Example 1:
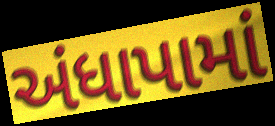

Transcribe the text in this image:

અંધાપામાં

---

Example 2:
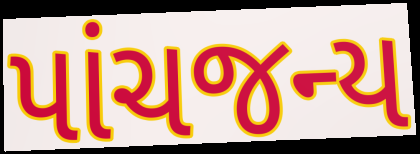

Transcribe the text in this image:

પાંચજન્ય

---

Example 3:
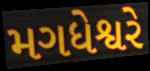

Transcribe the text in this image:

મગધેશ્વરે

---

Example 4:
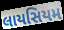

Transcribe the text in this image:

લાયસિયમ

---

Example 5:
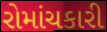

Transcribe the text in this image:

રોમાંચકારી